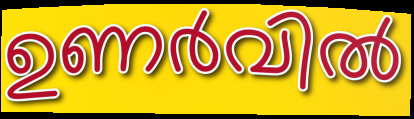
ഉണർവിൽ